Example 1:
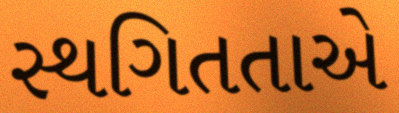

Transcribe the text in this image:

સ્થગિતતાએ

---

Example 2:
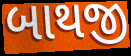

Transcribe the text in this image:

બાથજી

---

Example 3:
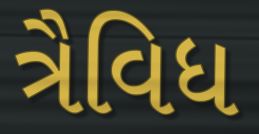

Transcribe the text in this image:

ત્રૈવિધ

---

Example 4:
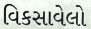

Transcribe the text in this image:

વિકસાવેલો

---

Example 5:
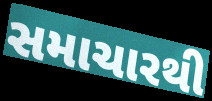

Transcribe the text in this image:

સમાચારથી